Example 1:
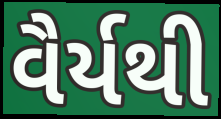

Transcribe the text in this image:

વૈર્યથી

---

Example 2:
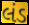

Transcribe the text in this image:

લંડ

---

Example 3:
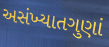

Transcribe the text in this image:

અસંખ્યાતગુણાં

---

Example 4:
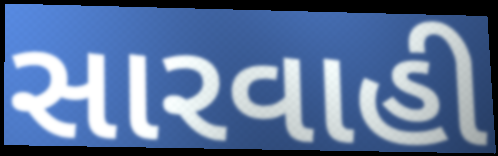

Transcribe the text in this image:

સારવાહી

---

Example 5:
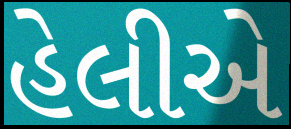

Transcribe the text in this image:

હેલીએ